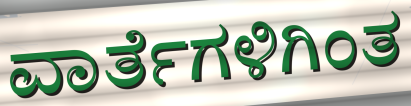
ವಾರ್ತೆಗಳಿಗಿಂತ